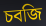
চবজি